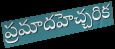
ప్రమాదహెచ్చరిక